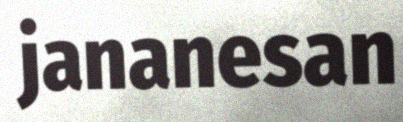
jananesan